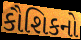
કૌશિકનો